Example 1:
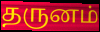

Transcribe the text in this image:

தருனம்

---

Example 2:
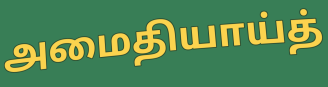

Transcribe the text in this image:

அமைதியாய்த்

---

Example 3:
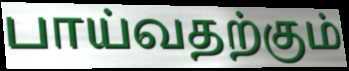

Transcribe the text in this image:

பாய்வதற்கும்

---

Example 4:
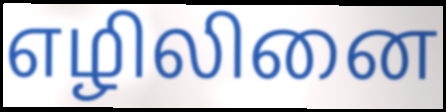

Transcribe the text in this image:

எழிலினை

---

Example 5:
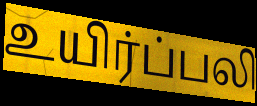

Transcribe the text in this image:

உயிர்ப்பலி